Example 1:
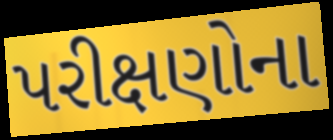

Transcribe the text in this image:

પરીક્ષણોના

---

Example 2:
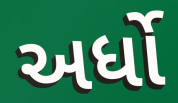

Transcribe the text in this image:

અર્ધો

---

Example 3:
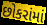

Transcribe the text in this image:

છોકરાંમાં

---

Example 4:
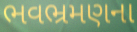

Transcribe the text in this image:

ભવભ્રમણના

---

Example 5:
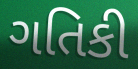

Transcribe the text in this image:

ગતિકી